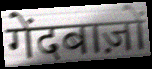
गेंदबाज़ों